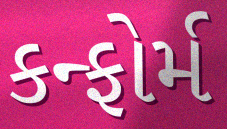
કન્ફોર્મ